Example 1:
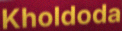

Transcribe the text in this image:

Kholdoda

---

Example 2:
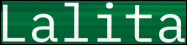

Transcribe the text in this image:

Lalita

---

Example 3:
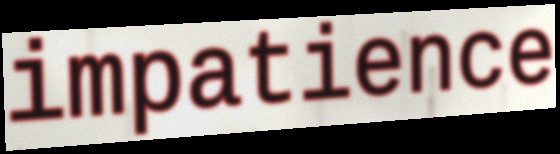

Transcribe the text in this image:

impatience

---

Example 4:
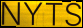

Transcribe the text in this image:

NYTS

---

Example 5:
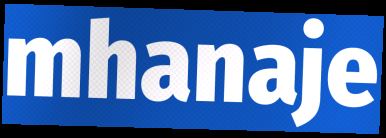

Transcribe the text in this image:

mhanaje